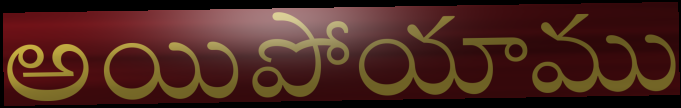
అయిపోయాము